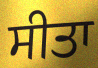
ਸੀਤਾ